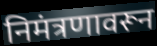
निमंत्रणावरून